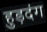
हुड़दंग